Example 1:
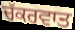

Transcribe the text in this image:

ਚੱਕਰਵਾਤ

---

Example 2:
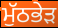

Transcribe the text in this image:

ਮੁੱਠਭੇੜ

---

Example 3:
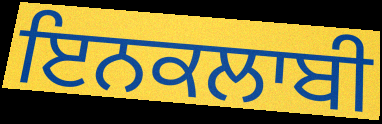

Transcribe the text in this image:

ਇਨਕਲਾਬੀ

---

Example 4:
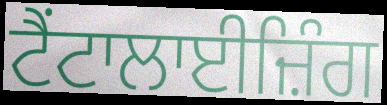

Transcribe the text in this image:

ਟੈਂਟਾਲਾਈਜ਼ਿੰਗ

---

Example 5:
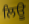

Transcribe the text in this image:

ਲਿਊ